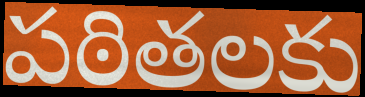
పఠితలకు